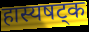
हास्यषट्क